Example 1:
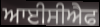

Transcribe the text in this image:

ਆਈਸੀਐਫ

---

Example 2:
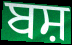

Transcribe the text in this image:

ਬਸ਼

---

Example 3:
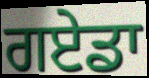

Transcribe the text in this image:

ਗਏਡਾ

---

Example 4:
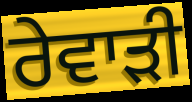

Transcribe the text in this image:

ਰੇਵਾਡ਼ੀ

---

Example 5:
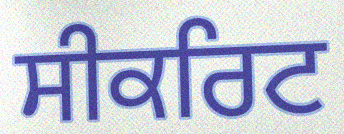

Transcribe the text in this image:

ਸੀਕਰਿਟ